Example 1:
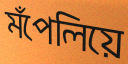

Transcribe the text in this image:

মঁপেলিয়ে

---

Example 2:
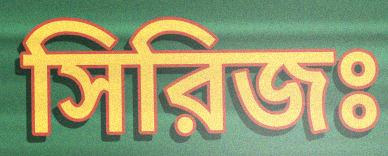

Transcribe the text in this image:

সিরিজঃ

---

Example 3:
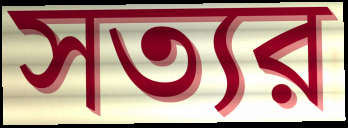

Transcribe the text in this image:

সত্যর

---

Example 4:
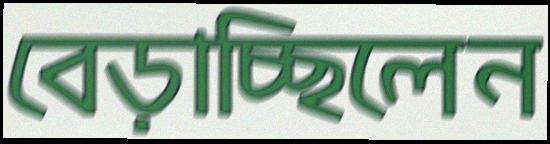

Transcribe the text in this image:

বেড়াচ্ছিলেন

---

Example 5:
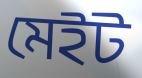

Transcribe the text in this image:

মেইট